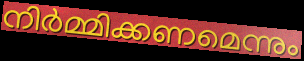
നിർമ്മിക്കണമെന്നും